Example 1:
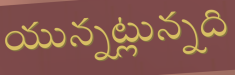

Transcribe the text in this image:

యున్నట్లున్నది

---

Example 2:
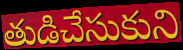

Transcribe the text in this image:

తుడిచేసుకుని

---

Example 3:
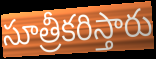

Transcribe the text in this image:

సూత్రీకరిస్తారు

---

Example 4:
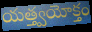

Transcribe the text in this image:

యత్త్వయోక్తం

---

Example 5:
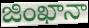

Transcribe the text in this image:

జింఖానా